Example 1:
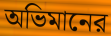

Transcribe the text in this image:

অভিমানের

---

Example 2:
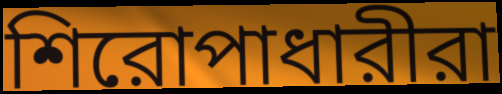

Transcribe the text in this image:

শিরোপাধারীরা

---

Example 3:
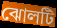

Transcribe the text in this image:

ঝোলটি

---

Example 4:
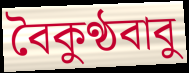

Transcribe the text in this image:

বৈকুণ্ঠবাবু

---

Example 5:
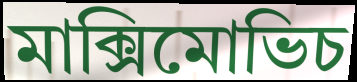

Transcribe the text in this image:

মাক্সিমোভিচ